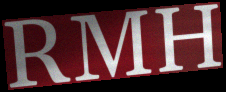
RMH